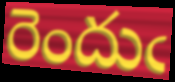
రెందుఁ